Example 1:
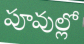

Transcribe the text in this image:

పూవుల్లో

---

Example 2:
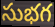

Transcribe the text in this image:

సుభగ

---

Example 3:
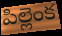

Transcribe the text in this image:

పిల్లెంక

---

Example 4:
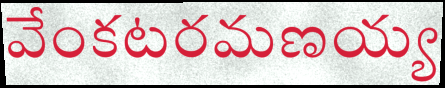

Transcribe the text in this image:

వేంకటరమణయ్య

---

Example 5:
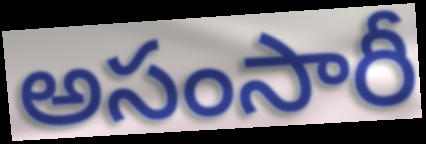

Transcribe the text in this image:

అసంసారీ